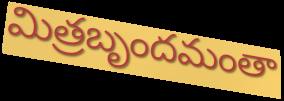
మిత్రబృందమంతా